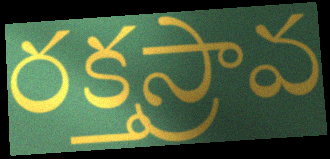
రక్తస్రావ